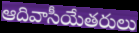
ఆదివాసీయేతరులు